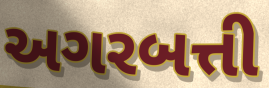
અગરબત્તી